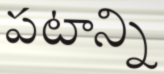
పటాన్ని